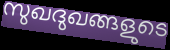
സുഖദുഖങ്ങളുടെ